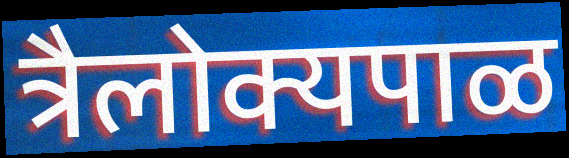
त्रैलोक्यपाळ